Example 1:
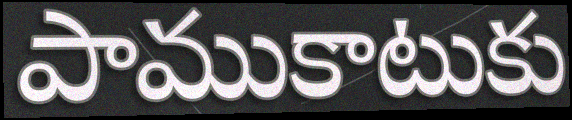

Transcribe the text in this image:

పాముకాటుకు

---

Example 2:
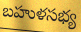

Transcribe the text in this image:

బహుళసభ్య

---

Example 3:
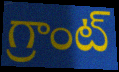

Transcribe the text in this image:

గ్రాంట్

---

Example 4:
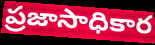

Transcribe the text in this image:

ప్రజాసాధికార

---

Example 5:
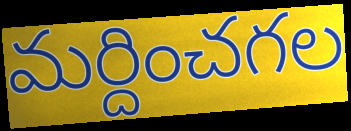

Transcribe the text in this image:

మర్దించగల